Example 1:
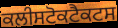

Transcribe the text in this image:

ਕਲੀਸਟੋਕਟੈਕਟਸ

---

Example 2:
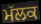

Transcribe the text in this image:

ਮੱਲਕ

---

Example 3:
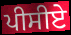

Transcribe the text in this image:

ਪੀਸੀਏ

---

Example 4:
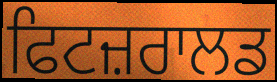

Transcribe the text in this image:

ਫਿਟਜ਼ਰਾਲਡ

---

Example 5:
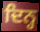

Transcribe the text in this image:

ਦਿਨ੍ਹ